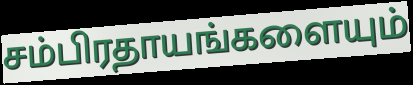
சம்பிரதாயங்களையும்